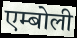
एम्बोली